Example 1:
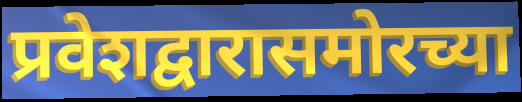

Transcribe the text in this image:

प्रवेशद्वारासमोरच्या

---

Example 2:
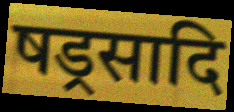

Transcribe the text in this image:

षड्रसादि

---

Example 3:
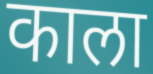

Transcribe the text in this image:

काला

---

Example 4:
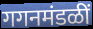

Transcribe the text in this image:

गगनमंडळीं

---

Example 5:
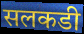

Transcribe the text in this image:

सलकडी